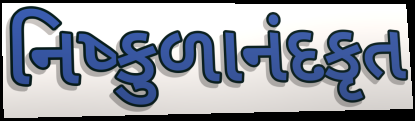
નિષ્કુળાનંદકૃત